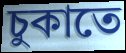
চুকাতে